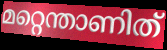
മറ്റെന്താണിത്